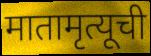
मातामृत्यूची